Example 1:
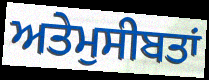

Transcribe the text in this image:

ਅਤੇਮੁਸੀਬਤਾਂ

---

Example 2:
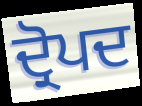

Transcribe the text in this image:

ਦ੍ਰੋਪਦ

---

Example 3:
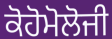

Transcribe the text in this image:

ਕੋਹੋਮੋਲੋਜੀ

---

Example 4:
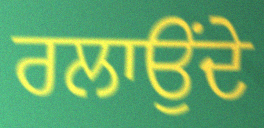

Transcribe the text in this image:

ਰਲਾਉਂਦੇ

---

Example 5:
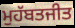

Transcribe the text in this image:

ਮੁਹੱਬਤਜੀਤ